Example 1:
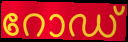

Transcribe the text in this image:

റോഡ്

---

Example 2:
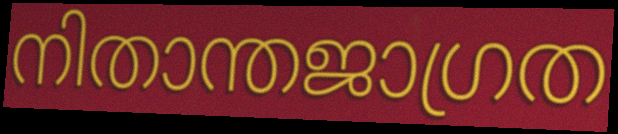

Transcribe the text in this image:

നിതാന്തജാഗ്രത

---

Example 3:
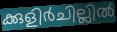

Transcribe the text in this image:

ക്കുളിർചില്ലിൽ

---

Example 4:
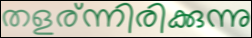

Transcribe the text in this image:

തളര്ന്നിരിക്കുന്നു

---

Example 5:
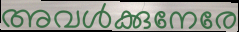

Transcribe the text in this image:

അവൾക്കുനേരേ